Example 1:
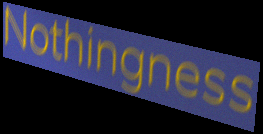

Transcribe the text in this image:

Nothingness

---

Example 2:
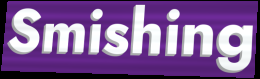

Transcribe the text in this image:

Smishing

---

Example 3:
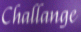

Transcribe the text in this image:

Challange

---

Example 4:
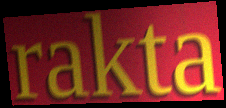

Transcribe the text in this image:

rakta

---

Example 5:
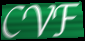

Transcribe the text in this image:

CVF